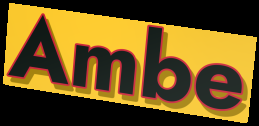
Ambe